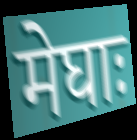
मेघाः